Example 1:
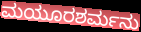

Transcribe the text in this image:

ಮಯೂರಶರ್ಮನು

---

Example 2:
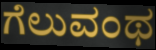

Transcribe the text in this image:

ಗೆಲುವಂಥ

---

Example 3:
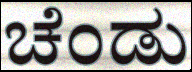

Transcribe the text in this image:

ಚೆಂಡು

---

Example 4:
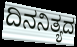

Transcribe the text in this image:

ದಿನನಿತ್ಯದ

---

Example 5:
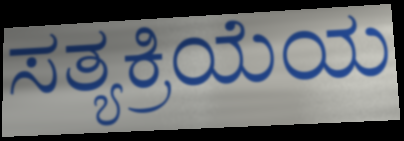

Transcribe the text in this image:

ಸತ್ಯಕ್ರಿಯೆಯ